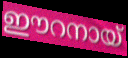
ഈറനായ്